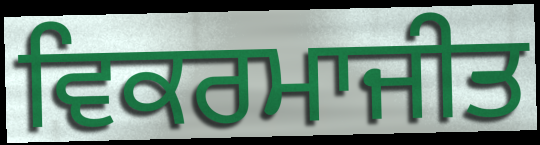
ਵਿਕਰਮਾਜੀਤ